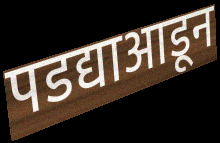
पडद्याआडून